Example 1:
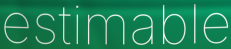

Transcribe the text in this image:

estimable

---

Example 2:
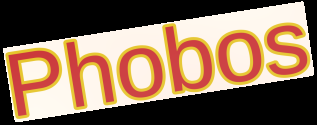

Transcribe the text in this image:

Phobos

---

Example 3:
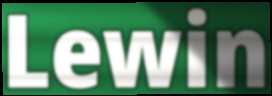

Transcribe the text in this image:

Lewin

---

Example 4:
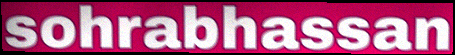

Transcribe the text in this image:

sohrabhassan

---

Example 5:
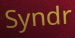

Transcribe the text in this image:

Syndr